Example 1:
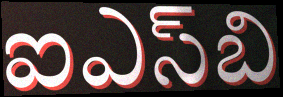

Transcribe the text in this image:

ఐఎస్‌బి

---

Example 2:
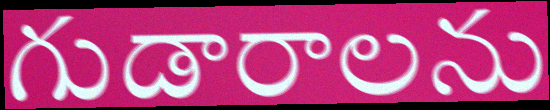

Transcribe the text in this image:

గుడారాలను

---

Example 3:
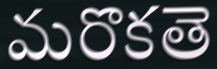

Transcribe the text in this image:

మరొకతె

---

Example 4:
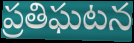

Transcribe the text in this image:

ప్రతిఘటన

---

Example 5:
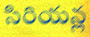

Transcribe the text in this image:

సిరియన్ల